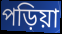
পড়িয়া